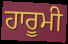
ਹਾਰੂਮੀ